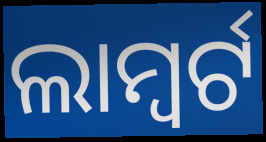
ଲାମ୍ବର୍ଟ